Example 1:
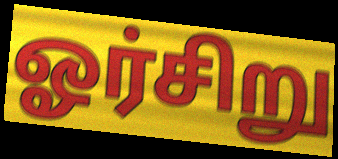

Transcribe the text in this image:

ஓர்சிறு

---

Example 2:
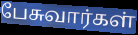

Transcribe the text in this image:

பேசுவார்கள்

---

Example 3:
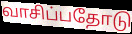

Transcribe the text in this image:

வாசிப்பதோடு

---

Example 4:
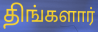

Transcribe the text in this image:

திங்களார்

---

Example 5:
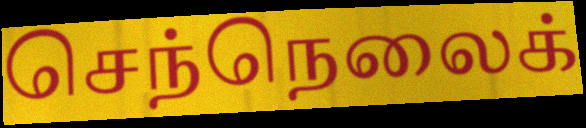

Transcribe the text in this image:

செந்நெலைக்